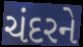
ચંદરને